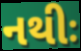
નથીઃ